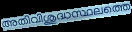
അതിവിശുദ്ധസ്ഥലത്തെ